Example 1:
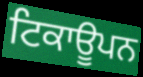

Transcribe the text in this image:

ਟਿਕਾਊਪਨ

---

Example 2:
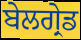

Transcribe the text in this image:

ਬੇਲਗ੍ਰੇਡ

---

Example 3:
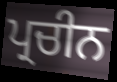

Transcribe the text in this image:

ਪ੍ਰਚੀਨ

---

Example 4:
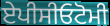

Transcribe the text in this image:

ਏਪੀਸੀਓਟੋਮੀ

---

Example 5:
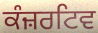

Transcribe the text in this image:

ਕੰਜ਼ਰਟਿਵ